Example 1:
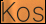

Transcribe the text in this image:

Kos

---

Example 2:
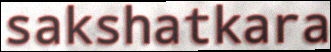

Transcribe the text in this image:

sakshatkara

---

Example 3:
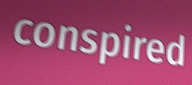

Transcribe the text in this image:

conspired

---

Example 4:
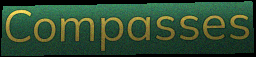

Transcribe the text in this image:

Compasses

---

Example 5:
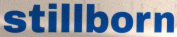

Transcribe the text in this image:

stillborn